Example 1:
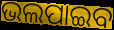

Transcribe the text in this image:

ଭଲପାଇବ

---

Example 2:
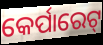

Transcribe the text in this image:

କେର୍ପାରେଟ୍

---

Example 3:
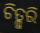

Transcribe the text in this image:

ଚିତ୍ଲୁରି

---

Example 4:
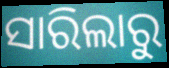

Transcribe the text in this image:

ସାରିଲାରୁ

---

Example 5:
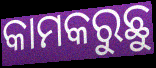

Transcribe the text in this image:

କାମକରୁଛୁ